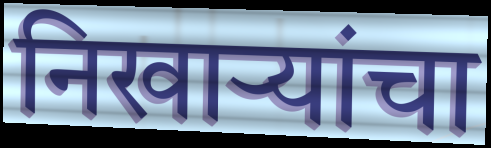
निखार्‍यांचा